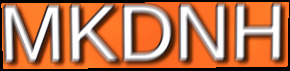
MKDNH